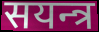
सयन्त्र